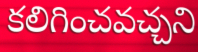
కలిగించవచ్చని